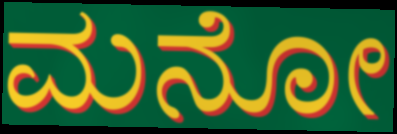
ಮನೋ